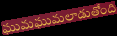
ఘుమఘుమలాడుతోంది